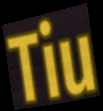
Tiu